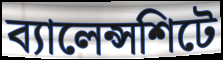
ব্যালেন্সশিটে